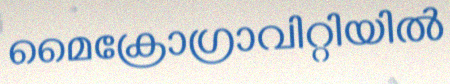
മൈക്രോഗ്രാവിറ്റിയിൽ